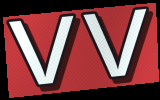
vv